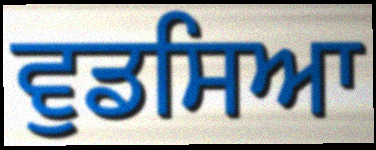
ਵੁਡਸਿਆ